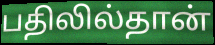
பதிலில்தான்